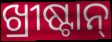
ଖ୍ରୀଷ୍ଟାନ୍